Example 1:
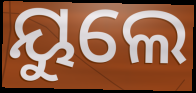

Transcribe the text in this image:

ୟୁଲେ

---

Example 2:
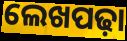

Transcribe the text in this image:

ଲେଖପଢ଼ା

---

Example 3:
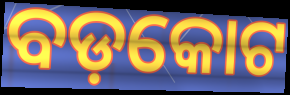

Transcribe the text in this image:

ବଡ଼କୋଟ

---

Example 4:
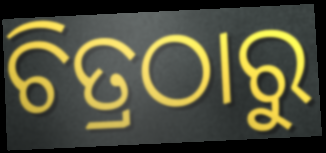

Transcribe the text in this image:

ଚିତ୍ରଠାରୁ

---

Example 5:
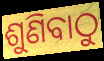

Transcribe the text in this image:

ଶୁଣିବାଠୁ